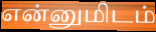
என்னுமிடம்